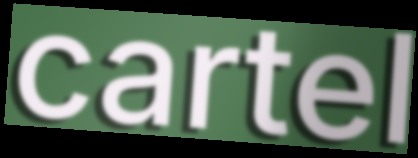
cartel